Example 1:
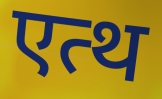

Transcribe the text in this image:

एत्थ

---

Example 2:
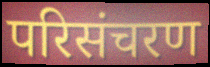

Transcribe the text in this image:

परिसंचरण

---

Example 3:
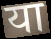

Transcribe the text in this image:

या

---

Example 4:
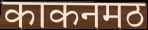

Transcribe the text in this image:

काकनमठ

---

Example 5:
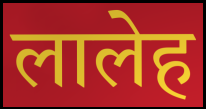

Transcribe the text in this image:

लालेह